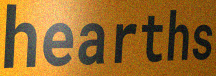
hearths